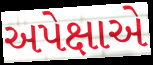
અપેક્ષાએ